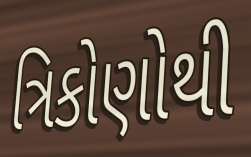
ત્રિકોણોથી